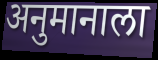
अनुमानाला